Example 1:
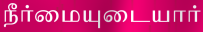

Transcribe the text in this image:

நீர்மையுடையார்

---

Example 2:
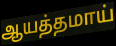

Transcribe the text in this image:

ஆயத்தமாய்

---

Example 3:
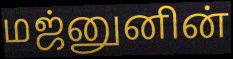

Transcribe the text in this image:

மஜ்னுனின்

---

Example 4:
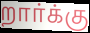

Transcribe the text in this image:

றார்க்கு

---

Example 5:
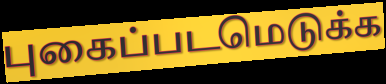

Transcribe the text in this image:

புகைப்படமெடுக்க